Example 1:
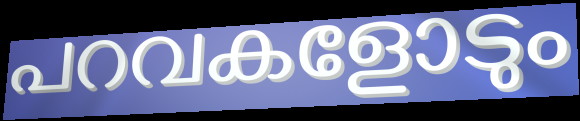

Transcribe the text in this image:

പറവകളോടും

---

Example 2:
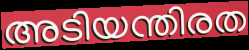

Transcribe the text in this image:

അടിയന്തിരത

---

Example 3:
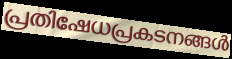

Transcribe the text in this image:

പ്രതിഷേധപ്രകടനങ്ങൾ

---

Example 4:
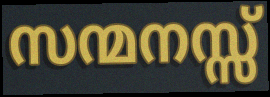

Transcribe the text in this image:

സന്മനസ്സ്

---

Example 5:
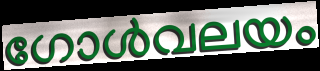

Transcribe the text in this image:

ഗോൾവലയം